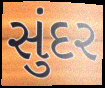
સુંદર